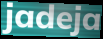
jadeja